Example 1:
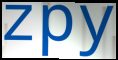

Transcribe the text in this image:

zpy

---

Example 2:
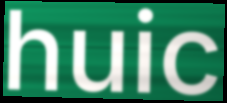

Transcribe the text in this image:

huic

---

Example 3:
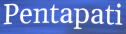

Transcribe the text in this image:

Pentapati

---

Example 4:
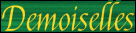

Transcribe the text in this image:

Demoiselles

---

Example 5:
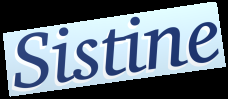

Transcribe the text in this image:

Sistine